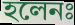
হলেনঃ